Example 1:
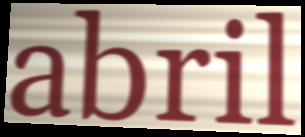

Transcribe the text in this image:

abril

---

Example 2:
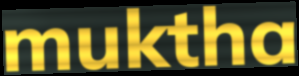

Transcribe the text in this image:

muktha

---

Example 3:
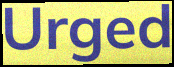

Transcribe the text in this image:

Urged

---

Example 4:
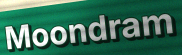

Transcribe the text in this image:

Moondram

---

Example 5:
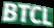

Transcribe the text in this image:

BTCL